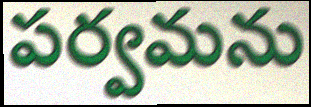
పర్వమను